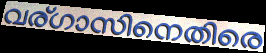
വര്ഗാസിനെതിരെ